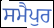
ਸਮੈਪੁਰ